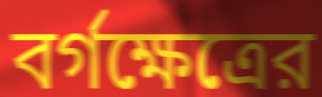
বর্গক্ষেত্রের